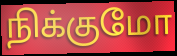
நிக்குமோ